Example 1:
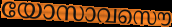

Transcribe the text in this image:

യോസാവസൌ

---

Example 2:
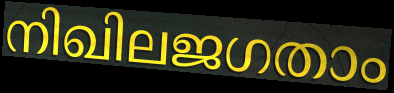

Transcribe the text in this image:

നിഖിലജഗതാം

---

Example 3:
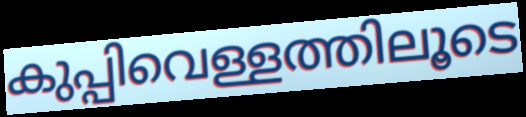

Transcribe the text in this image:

കുപ്പിവെള്ളത്തിലൂടെ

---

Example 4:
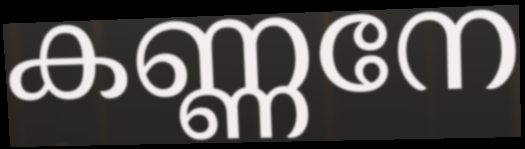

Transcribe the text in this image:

കണ്ണനേ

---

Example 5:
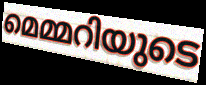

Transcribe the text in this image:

മെമ്മറിയുടെ